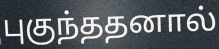
புகுந்ததனால்